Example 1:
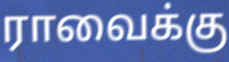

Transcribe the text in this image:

ராவைக்கு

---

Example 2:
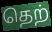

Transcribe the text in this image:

தெற்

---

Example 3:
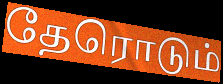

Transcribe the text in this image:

தேரொடும்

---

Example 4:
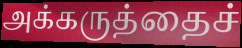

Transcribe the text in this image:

அக்கருத்தைச்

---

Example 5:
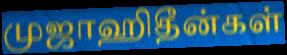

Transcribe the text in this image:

முஜாஹிதீன்கள்